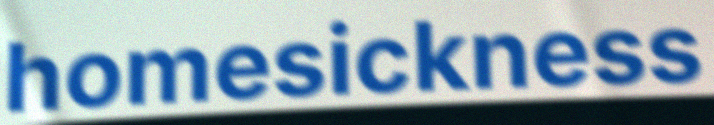
homesickness